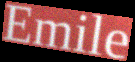
Emile